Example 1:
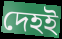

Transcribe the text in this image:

দেহই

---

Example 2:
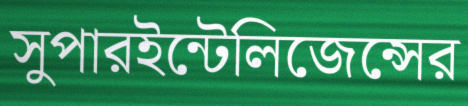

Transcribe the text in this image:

সুপারইন্টেলিজেন্সের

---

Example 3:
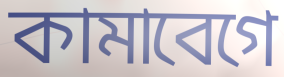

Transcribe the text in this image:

কামাবেগে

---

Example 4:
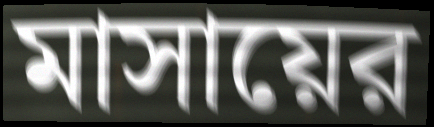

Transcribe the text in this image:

মাসায়ের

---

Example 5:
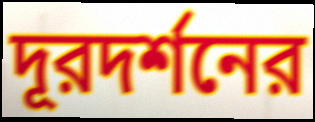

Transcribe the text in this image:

দূরদর্শনের